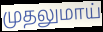
முதலுமாய்